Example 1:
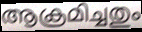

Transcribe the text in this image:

ആക്രമിച്ചതും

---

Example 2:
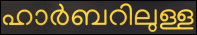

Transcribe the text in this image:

ഹാർബറിലുള്ള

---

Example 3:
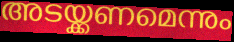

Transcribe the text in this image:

അടയ്ക്കണമെന്നും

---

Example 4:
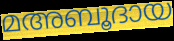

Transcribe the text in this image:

മഅബൂദായ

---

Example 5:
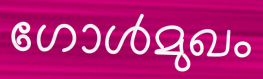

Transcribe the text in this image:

ഗോൾമുഖം